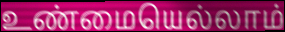
உண்மையெல்லாம்